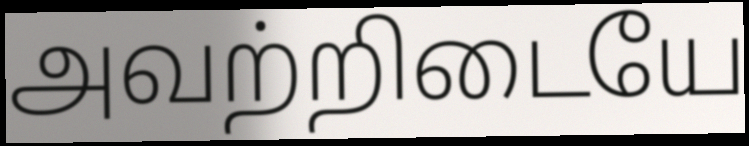
அவற்றிடையே